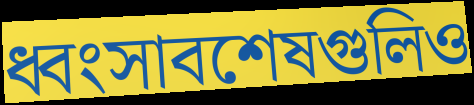
ধ্বংসাবশেষগুলিও